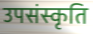
उपसंस्कृति